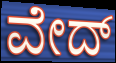
ವೇದ್